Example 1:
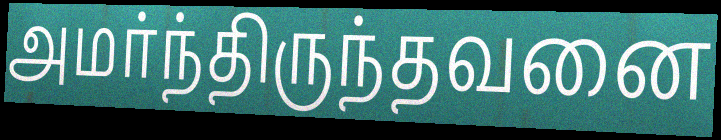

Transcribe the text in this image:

அமர்ந்திருந்தவனை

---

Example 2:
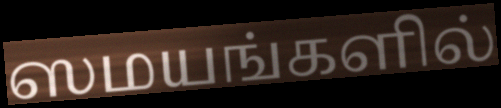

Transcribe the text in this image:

ஸமயங்களில்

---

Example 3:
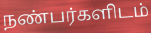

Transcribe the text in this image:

நண்பர்களிடம்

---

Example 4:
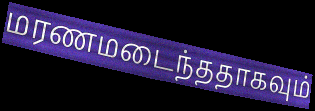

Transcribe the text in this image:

மரணமடைந்ததாகவும்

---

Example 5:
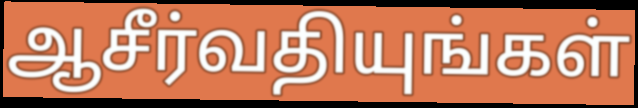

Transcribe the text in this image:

ஆசீர்வதியுங்கள்